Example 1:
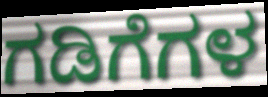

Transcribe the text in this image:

ಗಡಿಗೆಗಳ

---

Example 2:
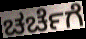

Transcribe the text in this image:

ಚರ್ಚೆಗೆ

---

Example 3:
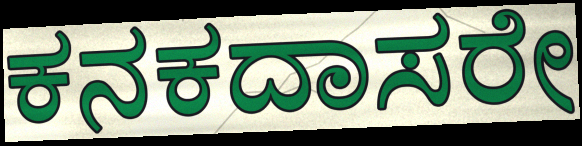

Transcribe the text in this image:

ಕನಕದಾಸರೇ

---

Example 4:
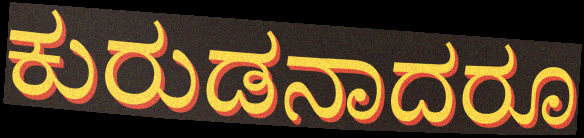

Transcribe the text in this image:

ಕುರುಡನಾದರೂ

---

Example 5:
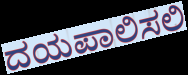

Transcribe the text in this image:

ದಯಪಾಲಿಸಲಿ